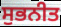
ਸੁਭਨੀਤ